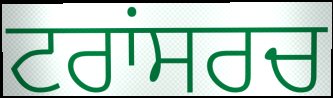
ਟਰਾਂਸਰਚ